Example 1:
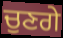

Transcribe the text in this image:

ਚੁਣਗੇ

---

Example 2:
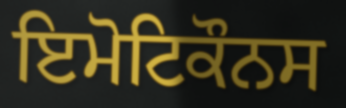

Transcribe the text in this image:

ਇਮੋਟਿਕੌਨਸ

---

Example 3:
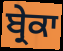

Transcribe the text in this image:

ਬ੍ਰੇਕਾ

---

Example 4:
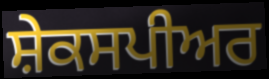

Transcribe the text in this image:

ਸ਼ੇਕਸਪੀਅਰ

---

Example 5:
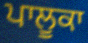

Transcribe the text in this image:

ਪਾਲੂਕਾ